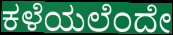
ಕಳೆಯಲೆಂದೇ